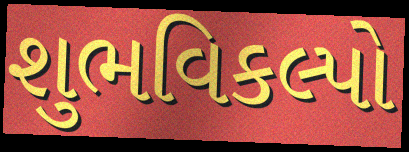
શુભવિકલ્પો